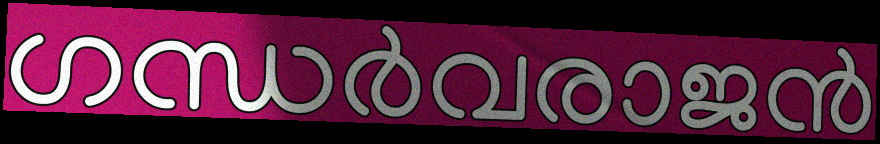
ഗന്ധർവരാജൻ